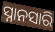
ସ୍ନାନସାରି